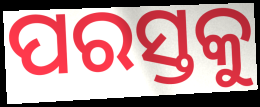
ପରସ୍ତକୁ